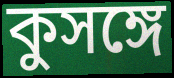
কুসঙ্গে